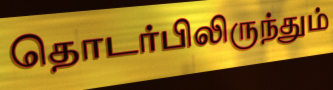
தொடர்பிலிருந்தும்